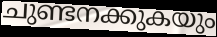
ചുണ്ടനക്കുകയും